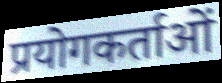
प्रयोगकर्ताओं